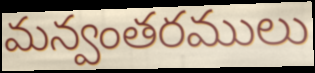
మన్వంతరములు